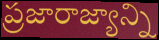
ప్రజారాజ్యాన్ని